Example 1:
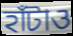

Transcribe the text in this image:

হাঁটাও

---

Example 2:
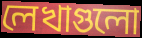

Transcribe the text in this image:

লেখাগুলো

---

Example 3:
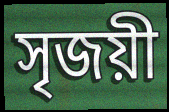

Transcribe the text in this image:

সৃজয়ী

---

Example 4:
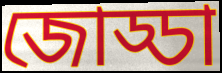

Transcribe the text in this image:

জোড্ডা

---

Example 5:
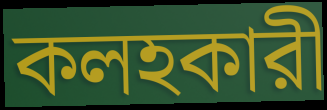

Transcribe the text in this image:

কলহকারী